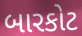
બારકોટ